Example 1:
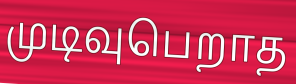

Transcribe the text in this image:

முடிவுபெறாத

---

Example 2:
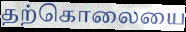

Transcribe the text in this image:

தற்கொலையை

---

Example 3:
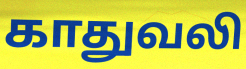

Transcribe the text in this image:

காதுவலி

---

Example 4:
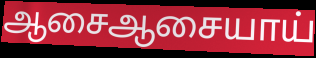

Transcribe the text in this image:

ஆசைஆசையாய்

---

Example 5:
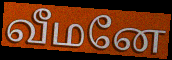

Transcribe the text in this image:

வீமனே